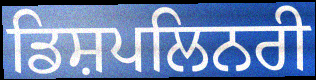
ਡਿਸ਼ਪਲਿਨਰੀ